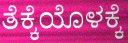
ತೆಕ್ಕೆಯೊಳಕ್ಕೆ